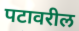
पटावरील